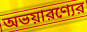
অভয়ারণ্যের